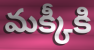
మక్కీకి